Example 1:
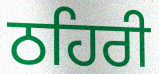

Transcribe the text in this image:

ਠਹਿਰੀ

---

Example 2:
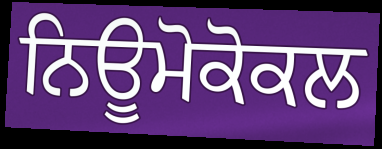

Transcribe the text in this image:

ਨਿਊਮੋਕੋਕਲ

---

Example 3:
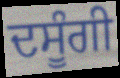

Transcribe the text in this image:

ਦਸੂੰਗੀ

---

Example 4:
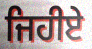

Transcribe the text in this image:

ਜਿਹੀਏ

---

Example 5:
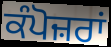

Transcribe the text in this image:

ਕੰਪੋਜ਼ਰਾਂ